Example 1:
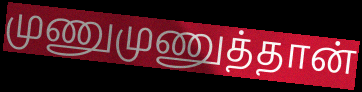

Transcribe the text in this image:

முணுமுணுத்தான்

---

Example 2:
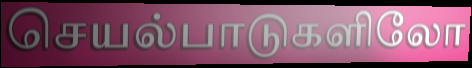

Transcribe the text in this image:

செயல்பாடுகளிலோ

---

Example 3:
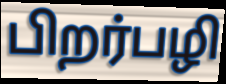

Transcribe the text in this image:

பிறர்பழி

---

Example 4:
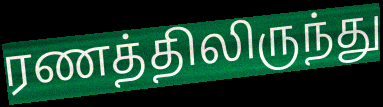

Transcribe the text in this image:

ரணத்திலிருந்து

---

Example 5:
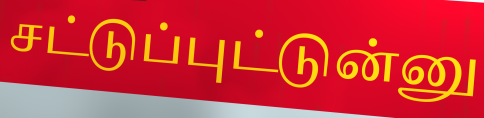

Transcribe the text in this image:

சட்டுப்புட்டுன்னு